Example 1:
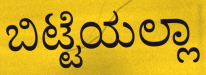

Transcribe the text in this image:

ಬಿಟ್ಟೆಯಲ್ಲಾ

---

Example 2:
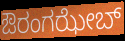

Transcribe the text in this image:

ಔರಂಗಝೇಬ್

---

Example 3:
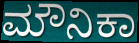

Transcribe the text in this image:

ಮೌನಿಕಾ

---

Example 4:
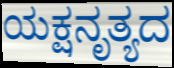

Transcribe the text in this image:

ಯಕ್ಷನೃತ್ಯದ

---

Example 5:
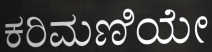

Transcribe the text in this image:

ಕರಿಮಣಿಯೇ